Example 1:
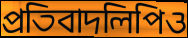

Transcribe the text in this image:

প্রতিবাদলিপিও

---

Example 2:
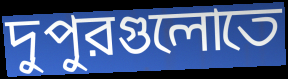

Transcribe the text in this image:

দুপুরগুলোতে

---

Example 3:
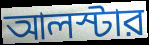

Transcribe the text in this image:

আলস্টার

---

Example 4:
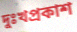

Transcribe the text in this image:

দুঃখপ্রকাশ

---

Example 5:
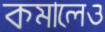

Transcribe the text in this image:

কমালেও